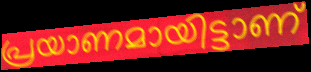
പ്രയാണമായിട്ടാണ്